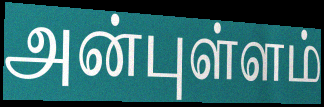
அன்புள்ளம்